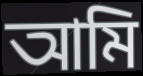
আমি